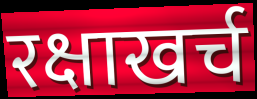
रक्षाखर्च